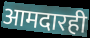
आमदारही